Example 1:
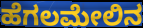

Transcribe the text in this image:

ಹೆಗಲಮೇಲಿನ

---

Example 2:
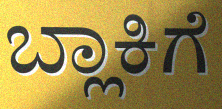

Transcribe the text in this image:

ಬ್ಲಾಕಿಗೆ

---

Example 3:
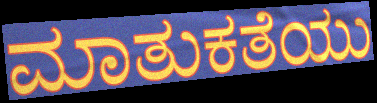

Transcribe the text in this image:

ಮಾತುಕತೆಯು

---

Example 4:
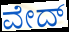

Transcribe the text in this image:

ವೇದ್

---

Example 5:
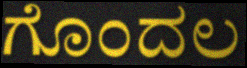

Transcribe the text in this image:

ಗೊಂದಲ